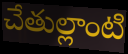
చేతుల్లాంటి